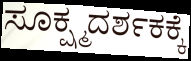
ಸೂಕ್ಷ್ಮದರ್ಶಕಕ್ಕೆ